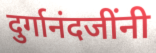
दुर्गानंदजींनी